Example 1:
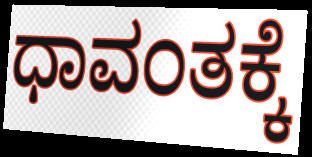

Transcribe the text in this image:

ಧಾವಂತಕ್ಕೆ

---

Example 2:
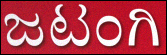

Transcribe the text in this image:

ಜಟಂಗಿ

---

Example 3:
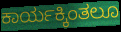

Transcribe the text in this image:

ಕಾರ್ಯಕ್ಕಿಂತಲೂ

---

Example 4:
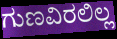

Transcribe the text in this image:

ಗುಣವಿರಲಿಲ್ಲ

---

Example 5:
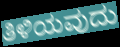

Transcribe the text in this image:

ತಿಳಿಯವುದು